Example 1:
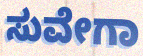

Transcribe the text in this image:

ಸುವೇಗಾ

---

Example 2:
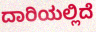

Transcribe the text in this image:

ದಾರಿಯಲ್ಲಿದೆ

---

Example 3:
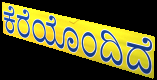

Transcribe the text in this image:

ಕೆರೆಯೊಂದಿದೆ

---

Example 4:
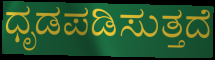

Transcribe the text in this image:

ಧೃಡಪಡಿಸುತ್ತದೆ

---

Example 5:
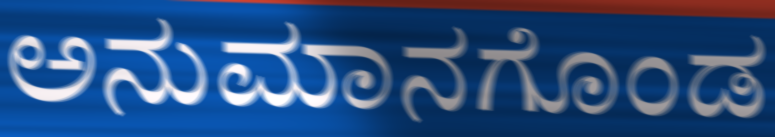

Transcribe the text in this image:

ಅನುಮಾನಗೊಂಡ